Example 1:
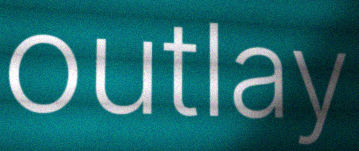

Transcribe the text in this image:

outlay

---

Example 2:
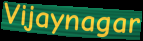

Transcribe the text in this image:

Vijaynagar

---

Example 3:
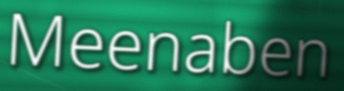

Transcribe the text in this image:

Meenaben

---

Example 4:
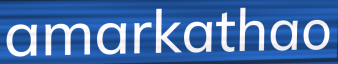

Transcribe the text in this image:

amarkathao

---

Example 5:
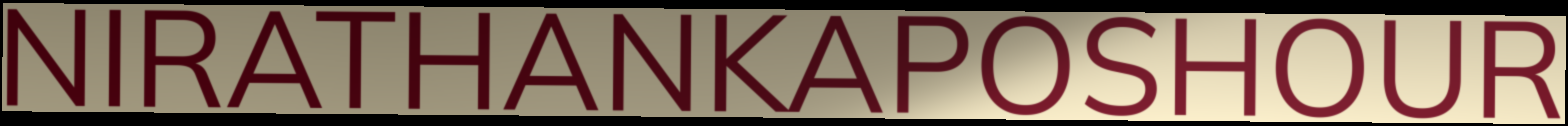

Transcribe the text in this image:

NIRATHANKAPOSHOUR